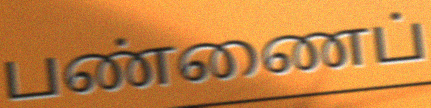
பண்ணைப்